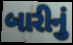
બારીનું